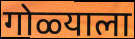
गोळ्याला